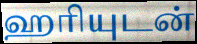
ஹரியுடன்